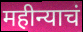
महीन्याचं